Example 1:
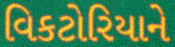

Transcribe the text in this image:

વિકટોરિયાને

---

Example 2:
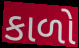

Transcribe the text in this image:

કાળો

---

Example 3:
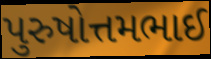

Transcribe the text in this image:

પુરુષોત્તમભાઈ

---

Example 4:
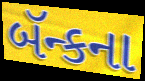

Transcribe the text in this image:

બૅન્કના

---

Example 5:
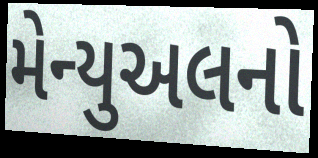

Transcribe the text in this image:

મેન્યુઅલનો